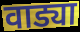
वाड्या